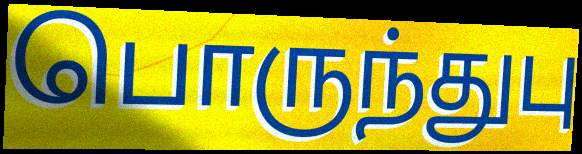
பொருந்துபு